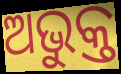
ଅଭୁକ୍ତ